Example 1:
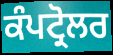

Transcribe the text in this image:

ਕੰਪਟ੍ਰੋਲਰ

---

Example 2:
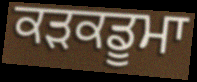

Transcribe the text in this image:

ਕੜਕਡੂਮਾ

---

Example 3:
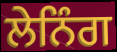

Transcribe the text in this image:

ਲੇਨਿੰਗ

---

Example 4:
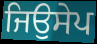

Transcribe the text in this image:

ਜਿਉਸੇਪ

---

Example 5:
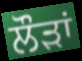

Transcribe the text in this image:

ਲੌੜਾਂ